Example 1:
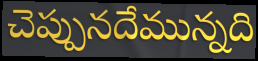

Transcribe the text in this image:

చెప్పునదేమున్నది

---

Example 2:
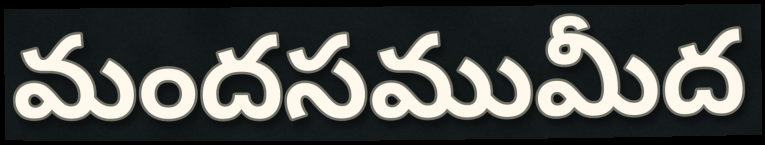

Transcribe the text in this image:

మందసముమీద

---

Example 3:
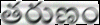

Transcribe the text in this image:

తరుణం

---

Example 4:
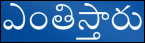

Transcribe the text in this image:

ఎంతిస్తారు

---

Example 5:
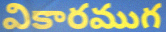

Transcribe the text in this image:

వికారముగ